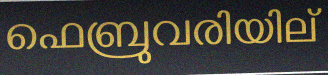
ഫെബ്രുവരിയില്